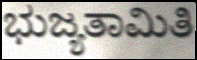
ಭುಜ್ಯತಾಮಿತಿ